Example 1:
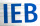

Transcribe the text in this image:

IEB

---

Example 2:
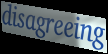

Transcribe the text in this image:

disagreeing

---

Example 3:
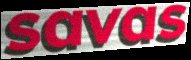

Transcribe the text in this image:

savas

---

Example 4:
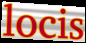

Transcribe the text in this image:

locis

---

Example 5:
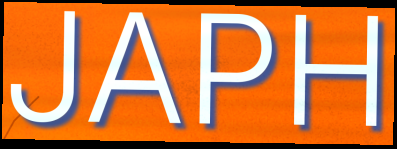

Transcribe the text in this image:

JAPH